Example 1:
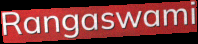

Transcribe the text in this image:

Rangaswami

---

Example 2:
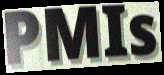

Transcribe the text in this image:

PMIs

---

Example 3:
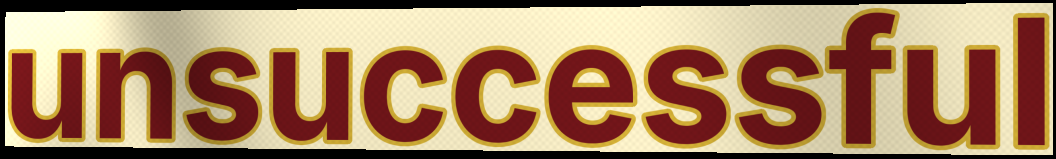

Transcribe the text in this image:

unsuccessful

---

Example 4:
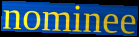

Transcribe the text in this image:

nominee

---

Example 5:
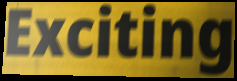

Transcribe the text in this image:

Exciting